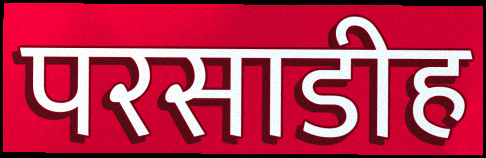
परसाडीह